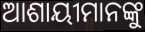
ଆଶାୟୀମାନଙ୍କୁ